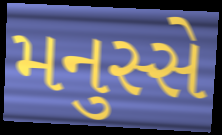
મનુસ્સે